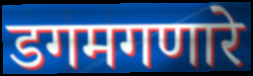
डगमगणारे